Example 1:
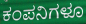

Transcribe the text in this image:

ಕಂಪನಿಗಳೂ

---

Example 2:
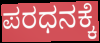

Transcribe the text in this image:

ಪರಧನಕ್ಕೆ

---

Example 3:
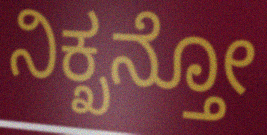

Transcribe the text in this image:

ನಿಕ್ಖನ್ತೋ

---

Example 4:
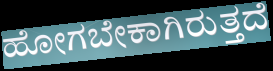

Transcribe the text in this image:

ಹೋಗಬೇಕಾಗಿರುತ್ತದೆ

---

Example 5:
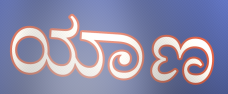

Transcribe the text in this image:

ಯಾಣ